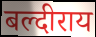
बल्दीराय